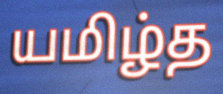
யமிழ்த